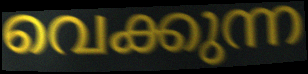
വെക്കുന്ന